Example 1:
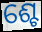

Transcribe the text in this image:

ଶ୍ଚେ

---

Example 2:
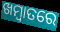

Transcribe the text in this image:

ଖମ୍ବାତରେ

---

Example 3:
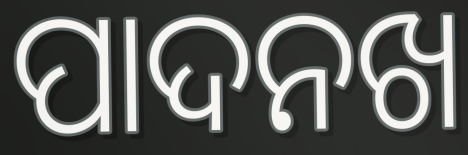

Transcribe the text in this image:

ପାଦନଖ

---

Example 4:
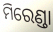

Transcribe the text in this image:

ମିରେଣ୍ଡା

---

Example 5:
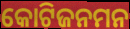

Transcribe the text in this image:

କୋଟିଜନମନ